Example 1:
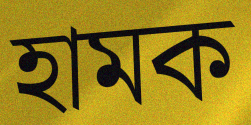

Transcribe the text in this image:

হামক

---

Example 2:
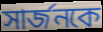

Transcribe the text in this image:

সার্জনকে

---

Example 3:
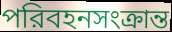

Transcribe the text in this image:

পরিবহনসংক্রান্ত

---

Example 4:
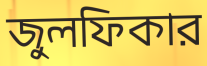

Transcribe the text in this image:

জুলফিকার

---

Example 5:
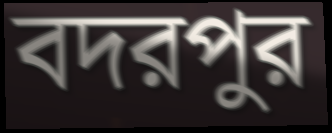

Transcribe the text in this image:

বদরপুর